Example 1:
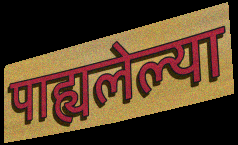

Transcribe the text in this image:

पाह्यलेल्या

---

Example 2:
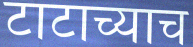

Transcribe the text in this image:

टाटाच्याच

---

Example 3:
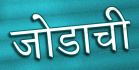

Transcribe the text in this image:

जोडाची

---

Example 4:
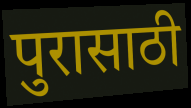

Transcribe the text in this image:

पुरासाठी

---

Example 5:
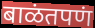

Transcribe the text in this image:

बाळंतपणं